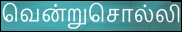
வென்றுசொல்லி